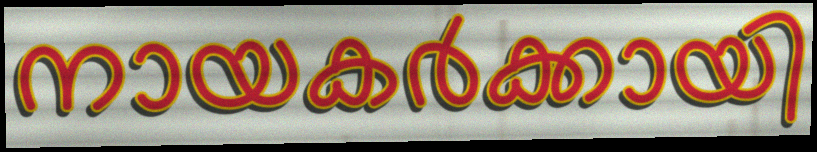
നായകർക്കായി